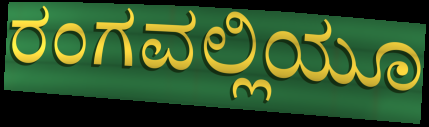
ರಂಗವಲ್ಲಿಯೂ